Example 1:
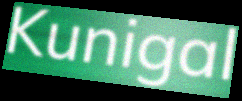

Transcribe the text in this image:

Kunigal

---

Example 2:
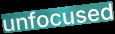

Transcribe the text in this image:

unfocused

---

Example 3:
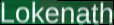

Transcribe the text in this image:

Lokenath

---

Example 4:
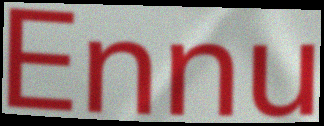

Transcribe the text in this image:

Ennu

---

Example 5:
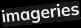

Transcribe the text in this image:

imageries